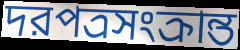
দরপত্রসংক্রান্ত